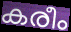
കരീം